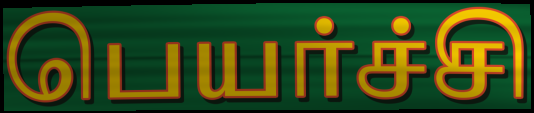
பெயர்ச்சி